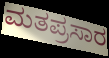
ಮತಪ್ರಸಾರ